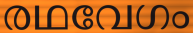
രഥവേഗം